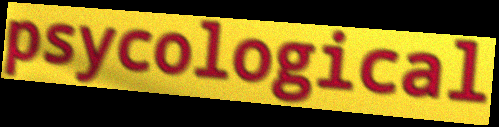
psycological